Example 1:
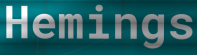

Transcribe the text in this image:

Hemings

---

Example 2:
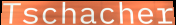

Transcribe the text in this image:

Tschacher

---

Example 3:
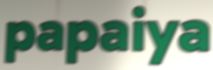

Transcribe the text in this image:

papaiya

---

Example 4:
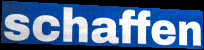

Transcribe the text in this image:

schaffen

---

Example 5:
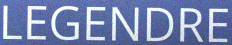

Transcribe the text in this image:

LEGENDRE